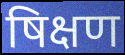
षिक्षण